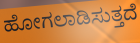
ಹೋಗಲಾಡಿಸುತ್ತದೆ